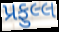
પ્રફુલ્લ